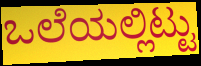
ಒಲೆಯಲ್ಲಿಟ್ಟು